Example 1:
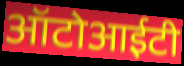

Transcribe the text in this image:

ऑटोआईटी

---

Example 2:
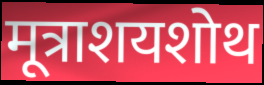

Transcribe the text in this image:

मूत्राशयशोथ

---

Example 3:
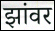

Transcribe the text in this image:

झांवर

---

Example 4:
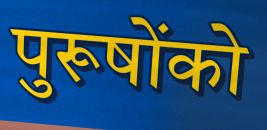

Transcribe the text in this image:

पुरूषोंको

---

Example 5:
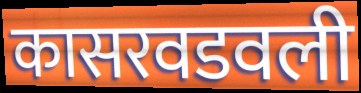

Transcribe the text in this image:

कासरवडवली